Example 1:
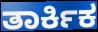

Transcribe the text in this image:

ತಾರ್ಕಿಕ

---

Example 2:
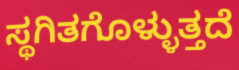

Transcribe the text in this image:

ಸ್ಥಗಿತಗೊಳ್ಳುತ್ತದೆ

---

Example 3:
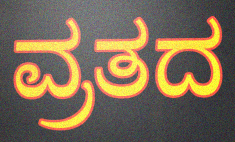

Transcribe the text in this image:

ವ್ರತದ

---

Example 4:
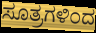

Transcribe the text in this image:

ಸೂತ್ರಗಳಿಂದ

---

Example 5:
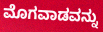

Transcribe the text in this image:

ಮೊಗವಾಡವನ್ನು